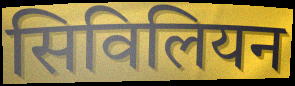
सिविलियन